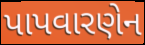
પાપવારણેન